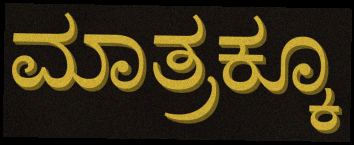
ಮಾತ್ರಕ್ಕೂ